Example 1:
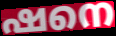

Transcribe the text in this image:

ഷനെ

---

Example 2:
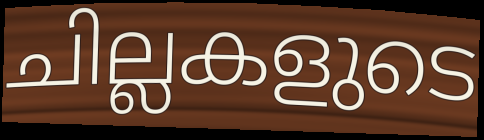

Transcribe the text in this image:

ചില്ലകളുടെ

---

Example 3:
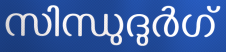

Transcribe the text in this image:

സിന്ധുദുർഗ്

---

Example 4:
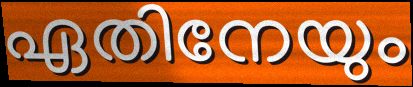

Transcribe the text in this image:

ഏതിനേയും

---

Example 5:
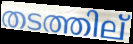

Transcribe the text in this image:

തടത്തില്